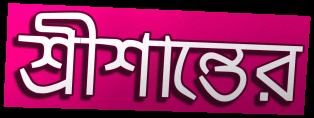
শ্রীশান্তের